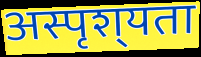
अस्पृश्यता